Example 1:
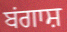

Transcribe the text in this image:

ਬਂਗਾਸ਼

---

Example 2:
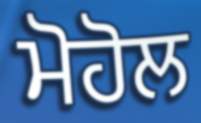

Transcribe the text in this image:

ਮੋਹੋਲ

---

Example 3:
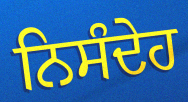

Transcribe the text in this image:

ਨਿਸੰਦੇਹ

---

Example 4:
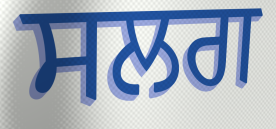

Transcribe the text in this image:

ਸਲਗ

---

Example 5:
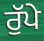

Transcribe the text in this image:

ਰੁੱਪੇ